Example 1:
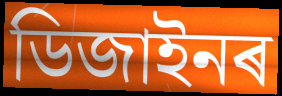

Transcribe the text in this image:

ডিজাইনৰ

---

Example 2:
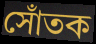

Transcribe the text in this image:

সোঁতক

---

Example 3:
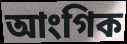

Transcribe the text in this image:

আংগিক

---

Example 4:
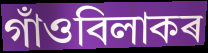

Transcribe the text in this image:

গাঁওবিলাকৰ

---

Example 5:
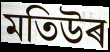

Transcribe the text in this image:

মতিউৰ